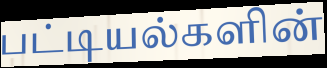
பட்டியல்களின்